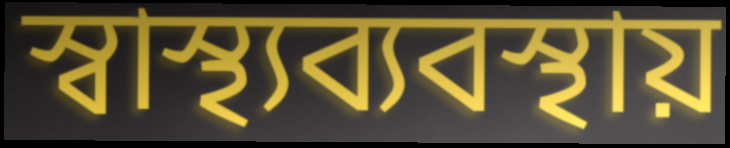
স্বাস্থ্যব্যবস্থায়